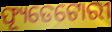
ଫ୍ୟୂଡେଟୋରୀ